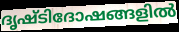
ദൃഷ്ടിദോഷങ്ങളിൽ